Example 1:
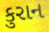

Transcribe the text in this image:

કુરાન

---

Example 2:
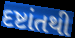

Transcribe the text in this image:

દષ્ટાંતથી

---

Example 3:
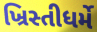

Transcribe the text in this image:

ખ્રિસ્તીધર્મે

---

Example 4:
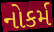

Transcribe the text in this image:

નોકર્મ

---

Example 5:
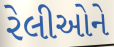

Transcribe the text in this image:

રેલીઓને